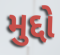
મુદ્દો